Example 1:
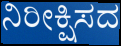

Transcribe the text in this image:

ನಿರೀಕ್ಷಿಸದ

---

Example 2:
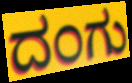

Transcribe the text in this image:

ದಂಗು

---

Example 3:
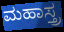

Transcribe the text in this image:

ಮಹಾಸ್ತ್ರ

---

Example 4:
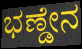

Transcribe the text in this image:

ಭಣ್ಡೇನ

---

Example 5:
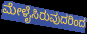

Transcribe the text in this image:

ಮೇಳೈಸಿರುವುದರಿಂದ